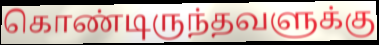
கொண்டிருந்தவளுக்கு